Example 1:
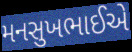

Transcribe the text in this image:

મનસુખભાઈએ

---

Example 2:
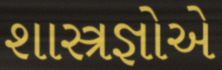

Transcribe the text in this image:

શાસ્ત્રજ્ઞોએ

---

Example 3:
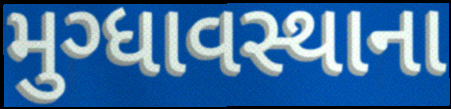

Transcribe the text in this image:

મુગ્ધાવસ્થાના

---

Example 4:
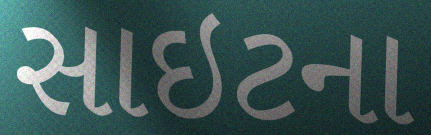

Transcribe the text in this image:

સાઇટના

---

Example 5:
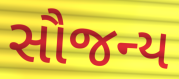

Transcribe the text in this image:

સૌજન્ય